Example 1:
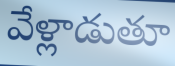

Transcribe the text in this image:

వేళ్లాడుతూ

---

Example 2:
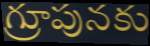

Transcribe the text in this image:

గ్రూపునకు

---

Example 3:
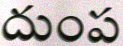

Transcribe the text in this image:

దుంప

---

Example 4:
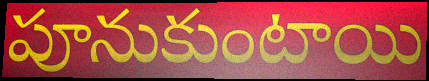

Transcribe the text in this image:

పూనుకుంటాయి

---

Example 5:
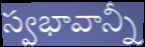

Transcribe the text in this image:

స్వభావాన్నీ